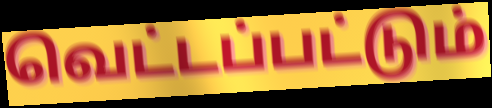
வெட்டப்பட்டும்